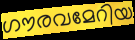
ഗൗരവമേറിയ